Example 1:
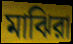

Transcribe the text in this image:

মাঝিরা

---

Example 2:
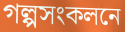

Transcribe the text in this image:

গল্পসংকলনে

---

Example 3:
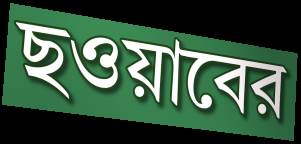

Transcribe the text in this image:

ছওয়াবের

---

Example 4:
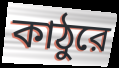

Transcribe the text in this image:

কাঠুরে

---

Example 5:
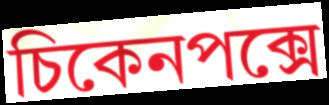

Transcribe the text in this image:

চিকেনপক্সে